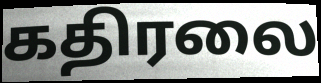
கதிரலை